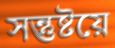
সন্তুষ্টয়ে